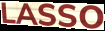
LASSO